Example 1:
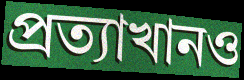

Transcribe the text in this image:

প্রত্যাখানও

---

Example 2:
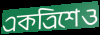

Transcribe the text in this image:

একত্রিশেও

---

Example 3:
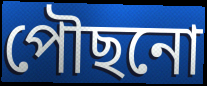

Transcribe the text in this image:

পৌছনো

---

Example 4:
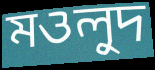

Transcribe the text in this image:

মওলুদ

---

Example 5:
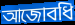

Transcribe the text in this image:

আজোবধি